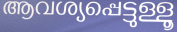
ആവശ്യപ്പെട്ടുള്ളൂ